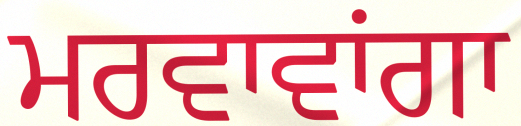
ਮਰਵਾਵਾਂਗਾ